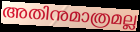
അതിനുമാത്രമല്ല